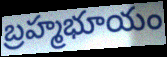
బ్రహ్మభూయం